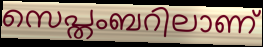
സെപ്തംബറിലാണ്